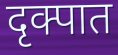
दृक्पात